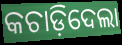
କଚାଡ଼ିଦେଲା